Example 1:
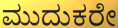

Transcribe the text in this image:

ಮುದುಕರೇ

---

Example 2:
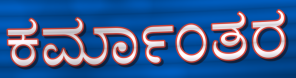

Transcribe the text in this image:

ಕರ್ಮಾಂತರ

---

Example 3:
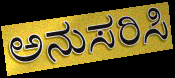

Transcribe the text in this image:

ಅನುಸರಿಸಿ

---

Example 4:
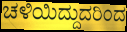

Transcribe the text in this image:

ಚಳಿಯಿದ್ದುದರಿಂದ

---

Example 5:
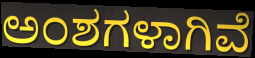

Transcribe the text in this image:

ಅಂಶಗಳಾಗಿವೆ